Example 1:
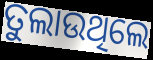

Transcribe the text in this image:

ତୁଲାଉଥିଲେ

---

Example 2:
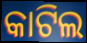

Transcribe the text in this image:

କାଟିଲ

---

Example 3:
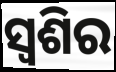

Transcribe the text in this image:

ସ୍ଵଶିର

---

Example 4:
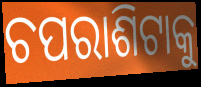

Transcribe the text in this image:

ଚପରାଶିଟାକୁ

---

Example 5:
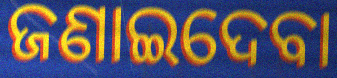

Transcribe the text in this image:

ଜଣାଇଦେବା